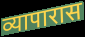
व्यापारास